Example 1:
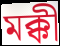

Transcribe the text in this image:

মক্কী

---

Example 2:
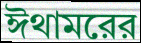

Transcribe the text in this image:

ঈথামরের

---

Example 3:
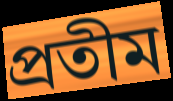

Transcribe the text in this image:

প্রতীম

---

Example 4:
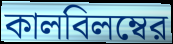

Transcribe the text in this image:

কালবিলম্বের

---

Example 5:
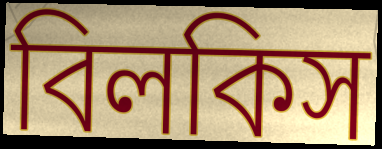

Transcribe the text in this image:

বিলকিস